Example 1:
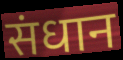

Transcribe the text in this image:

संधान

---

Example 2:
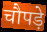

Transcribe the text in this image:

चौपड़े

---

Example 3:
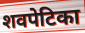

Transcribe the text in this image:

शवपेटिका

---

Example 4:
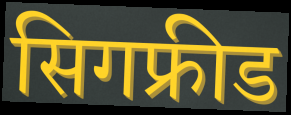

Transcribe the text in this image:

सिगफ्रीड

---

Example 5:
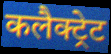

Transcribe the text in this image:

कलैक्ट्रेट